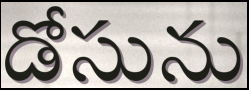
డోసును